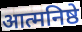
आत्मनिष्ठे